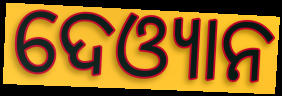
ଦେଓ୍ୟାନ